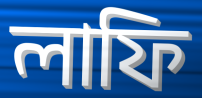
লাফি